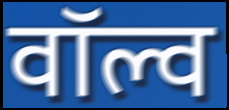
वॉल्व